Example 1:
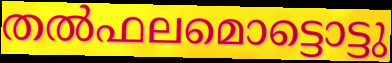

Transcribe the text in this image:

തൽഫലമൊട്ടൊട്ടു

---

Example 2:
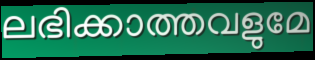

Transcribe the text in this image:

ലഭിക്കാത്തവളുമേ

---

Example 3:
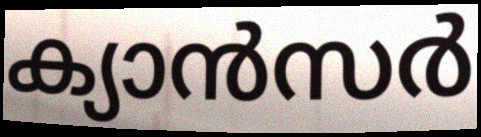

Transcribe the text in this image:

ക്യാൻസർ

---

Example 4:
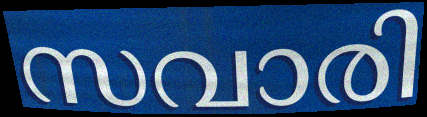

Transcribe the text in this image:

സവാരി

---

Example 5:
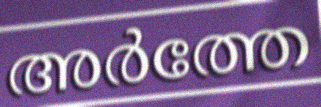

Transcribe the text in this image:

അർത്തേ